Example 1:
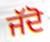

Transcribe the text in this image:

ਜੱਦੋ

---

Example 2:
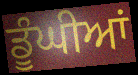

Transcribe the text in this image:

ਡੂੰਘੀਆਂ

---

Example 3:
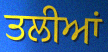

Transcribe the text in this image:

ਤਲੀਆਂ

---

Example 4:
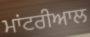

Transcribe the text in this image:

ਮਾਂਟਰੀਆਲ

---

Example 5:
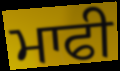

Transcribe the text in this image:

ਮਾਫੀ